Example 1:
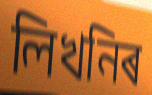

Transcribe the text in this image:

লিখনিৰ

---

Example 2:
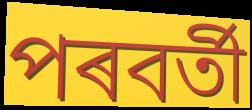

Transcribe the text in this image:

পৰবৰ্তী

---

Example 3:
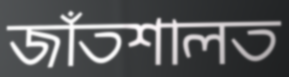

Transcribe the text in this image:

জাঁতশালত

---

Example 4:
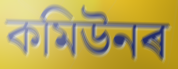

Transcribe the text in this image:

কমিউনৰ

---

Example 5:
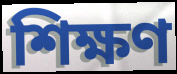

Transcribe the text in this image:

শিক্ষণ